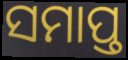
ସମାପ୍ତ